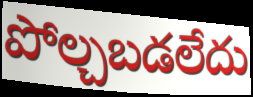
పోల్చబడలేదు